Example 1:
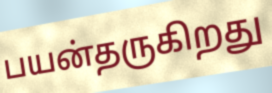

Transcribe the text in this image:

பயன்தருகிறது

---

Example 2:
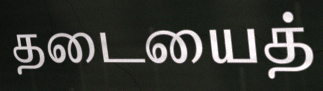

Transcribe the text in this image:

தடையைத்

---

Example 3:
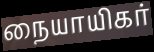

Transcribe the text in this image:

நையாயிகர்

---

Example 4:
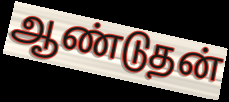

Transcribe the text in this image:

ஆண்டுதன்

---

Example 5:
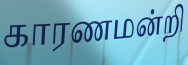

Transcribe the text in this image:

காரணமன்றி